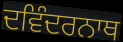
ਦਵਿੰਦਰਨਾਥ